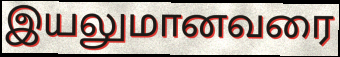
இயலுமானவரை